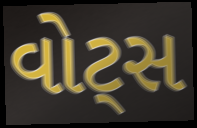
વોટ્સ